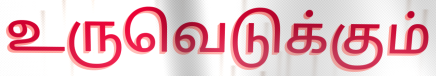
உருவெடுக்கும்